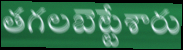
తగలబెట్టేశారు